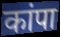
कांपा